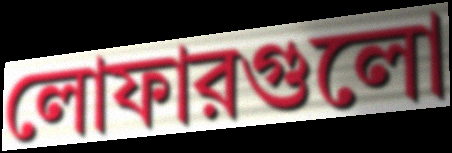
লোফারগুলো